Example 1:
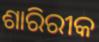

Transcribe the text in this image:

ଶାରିରୀକ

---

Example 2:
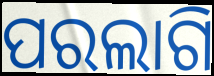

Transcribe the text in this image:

ପରଲାଗି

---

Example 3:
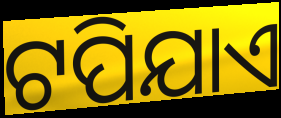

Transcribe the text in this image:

ଟପିଯାଏ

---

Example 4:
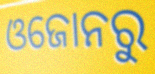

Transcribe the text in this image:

ଓଜୋନରୁ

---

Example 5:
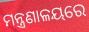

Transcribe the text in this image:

ମନ୍ତ୍ରଣାଳୟରେ